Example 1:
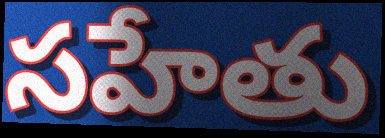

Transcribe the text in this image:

సహేతు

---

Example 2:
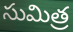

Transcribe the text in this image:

సుమిత్ర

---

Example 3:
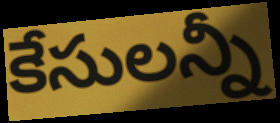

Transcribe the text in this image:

కేసులన్నీ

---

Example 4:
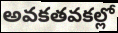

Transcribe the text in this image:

అవకతవకల్లో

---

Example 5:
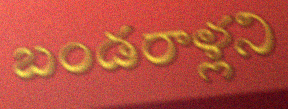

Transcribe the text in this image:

బండరాళ్లని